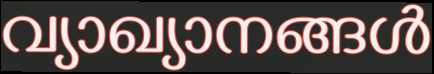
വ്യാഖ്യാനങ്ങൾ